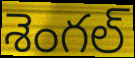
శెంగల్